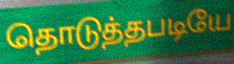
தொடுத்தபடியே